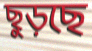
ছুড়ছে